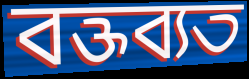
বক্তব্যত